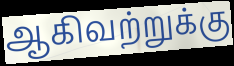
ஆகிவற்றுக்கு